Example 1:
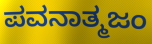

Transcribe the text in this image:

ಪವನಾತ್ಮಜಂ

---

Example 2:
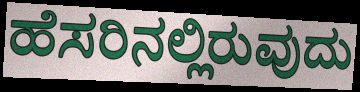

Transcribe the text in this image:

ಹೆಸರಿನಲ್ಲಿರುವುದು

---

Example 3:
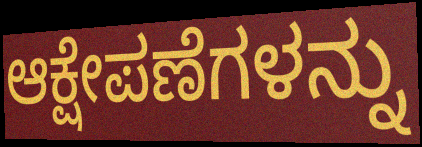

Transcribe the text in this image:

ಆಕ್ಷೇಪಣೆಗಳನ್ನು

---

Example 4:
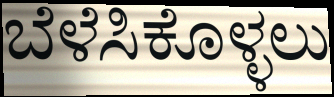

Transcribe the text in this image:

ಬೆಳೆಸಿಕೊಳ್ಳಲು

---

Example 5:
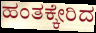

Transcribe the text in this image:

ಹಂತಕ್ಕೇರಿದ